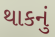
થાકનું